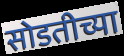
सोडतीच्या